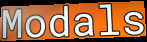
Modals